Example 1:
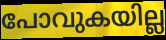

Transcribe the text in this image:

പോവുകയില്ല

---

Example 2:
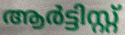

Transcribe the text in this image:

ആർട്ടിസ്റ്റ്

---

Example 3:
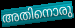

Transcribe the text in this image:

അതിനൊരു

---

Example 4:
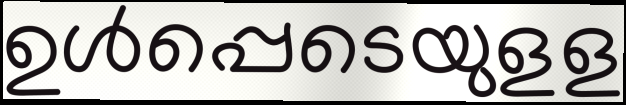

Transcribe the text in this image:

ഉൾപ്പെടെയുളള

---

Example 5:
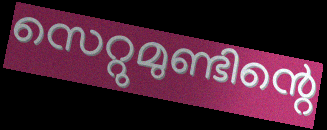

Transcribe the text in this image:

സെറ്റുമുണ്ടിന്റെ